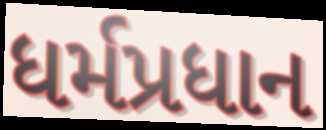
ધર્મપ્રધાન